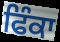
ਫਿੰਕਾ